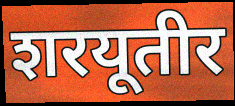
शरयूतीर